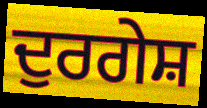
ਦੁਰਗੇਸ਼